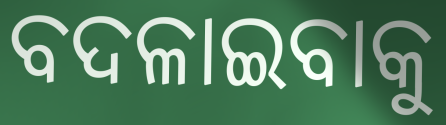
ବଦଳାଇବାକୁ